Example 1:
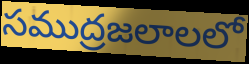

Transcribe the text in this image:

సముద్రజలాలలో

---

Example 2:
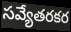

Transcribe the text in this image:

సవ్యేతరకర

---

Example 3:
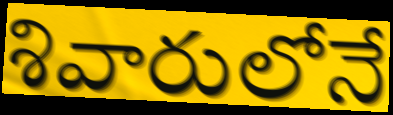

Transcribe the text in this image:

శివారులోనే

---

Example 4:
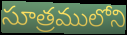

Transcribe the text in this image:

సూత్రములోని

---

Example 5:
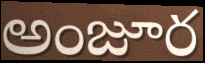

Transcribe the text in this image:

అంజూర